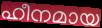
ഹീനമായ